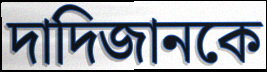
দাদিজানকে